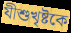
যীশুখৃষ্টকে